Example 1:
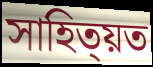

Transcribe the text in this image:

সাহিত্য়ত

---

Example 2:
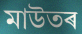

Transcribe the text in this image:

মাউতৰ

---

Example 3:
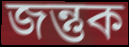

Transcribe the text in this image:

জন্তুক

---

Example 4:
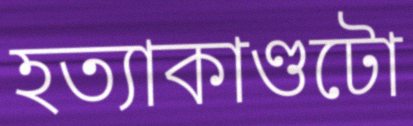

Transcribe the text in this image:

হত্যাকাণ্ডটো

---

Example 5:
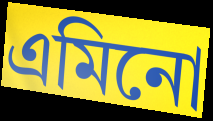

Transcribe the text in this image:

এমিনো